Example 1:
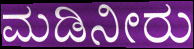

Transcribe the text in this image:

ಮಡಿನೀರು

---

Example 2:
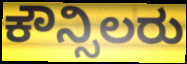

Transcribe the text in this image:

ಕೌನ್ಸಿಲರು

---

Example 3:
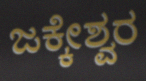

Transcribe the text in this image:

ಜಕ್ಕೇಶ್ವರ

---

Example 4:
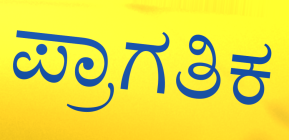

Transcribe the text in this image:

ಪ್ರಾಗತಿಕ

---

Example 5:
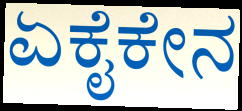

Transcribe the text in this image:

ಏಕೈಕೇನ